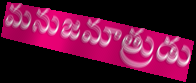
మనుజమాత్రుడు